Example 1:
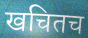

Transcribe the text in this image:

खचितच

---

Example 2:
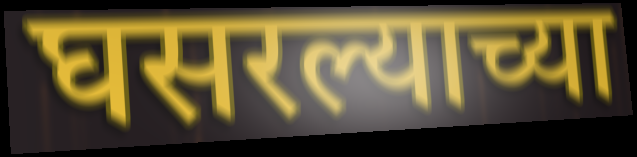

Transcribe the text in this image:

घसरल्याच्या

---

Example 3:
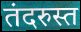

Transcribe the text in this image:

तंदरुस्त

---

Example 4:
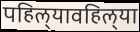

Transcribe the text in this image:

पहिल्यावहिल्या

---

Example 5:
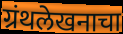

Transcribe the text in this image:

ग्रंथलेखनाचा